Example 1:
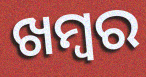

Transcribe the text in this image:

ଖମ୍ୱର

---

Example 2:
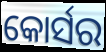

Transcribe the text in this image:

କୋର୍ସର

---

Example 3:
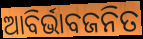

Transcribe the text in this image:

ଆବିର୍ଭାବଜନିତ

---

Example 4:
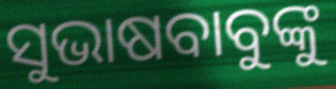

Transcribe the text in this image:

ସୁଭାଷବାବୁଙ୍କୁ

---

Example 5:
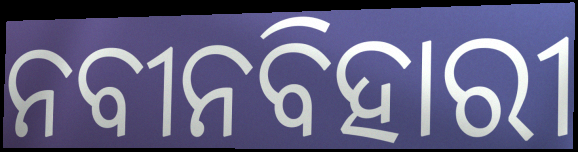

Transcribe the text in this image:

ନବୀନବିହାରୀ